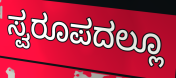
ಸ್ವರೂಪದಲ್ಲೂ